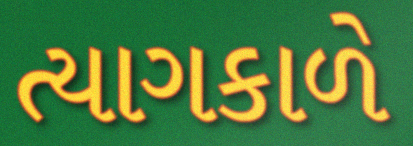
ત્યાગકાળે